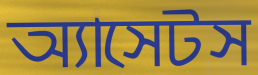
অ্যাসেটস